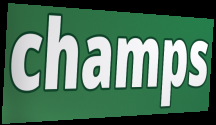
champs